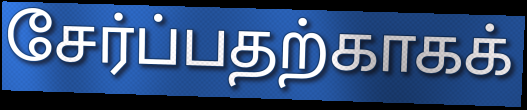
சேர்ப்பதற்காகக்